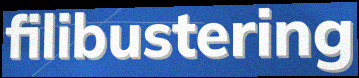
filibustering